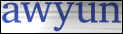
awyun